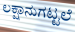
ಲಕ್ಷಾನುಗಟ್ಟಲೆ